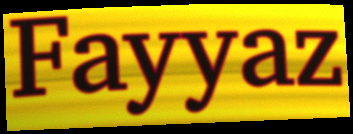
Fayyaz